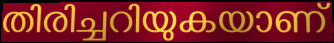
തിരിച്ചറിയുകയാണ്